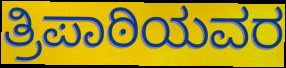
ತ್ರಿಪಾಠಿಯವರ